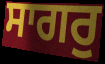
ਸਾਗਰੁ